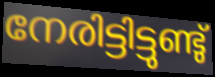
നേരിട്ടിട്ടുണ്ടു്